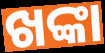
ଖଙ୍କା